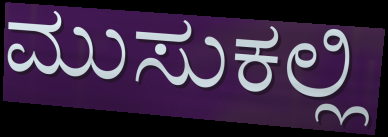
ಮುಸುಕಲ್ಲಿ